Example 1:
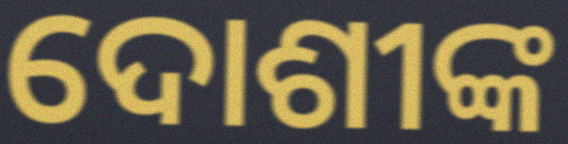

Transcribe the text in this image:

ଦୋଶୀଙ୍କ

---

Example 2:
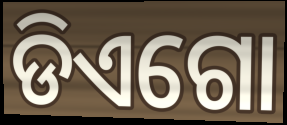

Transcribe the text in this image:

ଡିଏଗୋ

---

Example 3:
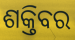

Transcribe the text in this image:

ଶକ୍ତିବର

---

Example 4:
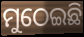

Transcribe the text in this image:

ମୁଠେଇଛି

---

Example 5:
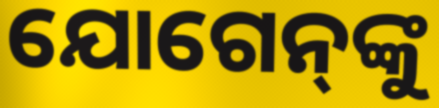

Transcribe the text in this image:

ଯୋଗେନ୍‌ଙ୍କୁ